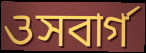
ওসবার্গ